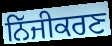
ਨਿੱਜੀਕਰਣ